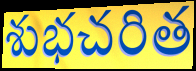
శుభచరిత